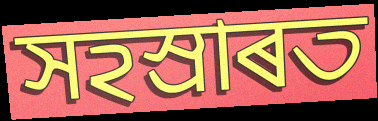
সহস্ৰাৰত